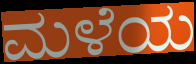
ಮಳೆಯ